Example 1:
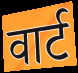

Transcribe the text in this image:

वार्ट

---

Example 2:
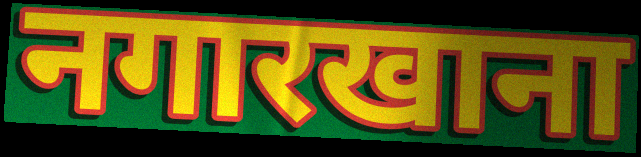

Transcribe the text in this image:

नगारखाना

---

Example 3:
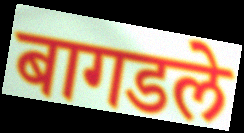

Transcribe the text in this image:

बागडले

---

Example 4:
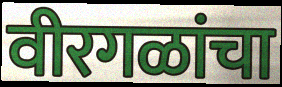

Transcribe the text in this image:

वीरगळांचा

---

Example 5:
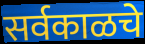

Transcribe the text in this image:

सर्वकाळचे